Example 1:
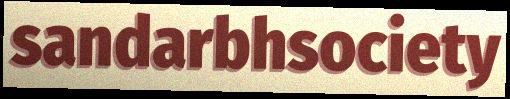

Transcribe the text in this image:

sandarbhsociety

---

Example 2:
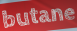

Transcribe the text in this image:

butane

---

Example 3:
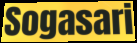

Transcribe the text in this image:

Sogasari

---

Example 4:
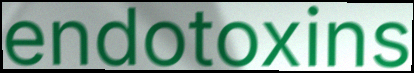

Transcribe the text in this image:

endotoxins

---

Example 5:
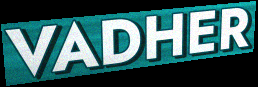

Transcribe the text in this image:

VADHER